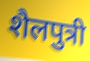
शैलपुत्री